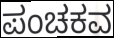
ಪಂಚಕವ